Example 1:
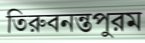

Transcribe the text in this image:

তিরুবনন্তপুরম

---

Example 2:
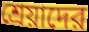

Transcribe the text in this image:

শ্রেয়াদের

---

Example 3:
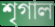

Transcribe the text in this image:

শৃগাল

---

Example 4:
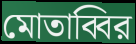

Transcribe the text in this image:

মোতাব্বির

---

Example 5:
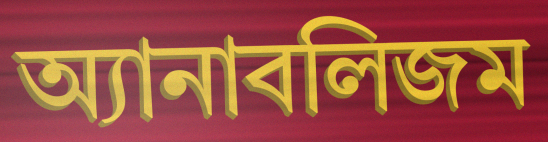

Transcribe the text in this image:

অ্যানাবলিজম